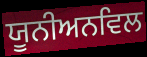
ਯੂਨੀਅਨਵਿਲ